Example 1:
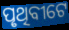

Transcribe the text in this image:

ପୃଥିବୀଟେ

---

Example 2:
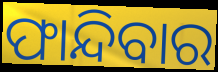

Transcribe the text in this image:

ଫାନ୍ଦିବାର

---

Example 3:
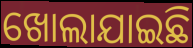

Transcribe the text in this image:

ଖୋଲାଯାଇଛି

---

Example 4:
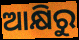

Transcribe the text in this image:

ଆକ୍ଷିରୁ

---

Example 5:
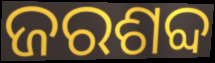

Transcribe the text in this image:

ଜରଶବ୍ଦ